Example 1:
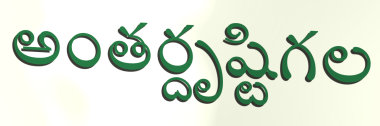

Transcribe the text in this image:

అంతర్దృష్టిగల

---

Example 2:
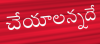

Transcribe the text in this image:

చేయాలన్నదే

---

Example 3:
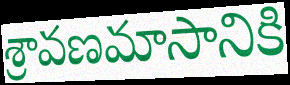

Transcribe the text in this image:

శ్రావణమాసానికి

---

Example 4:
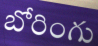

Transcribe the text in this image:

బోరింగు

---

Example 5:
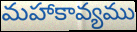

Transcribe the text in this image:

మహాకావ్యము